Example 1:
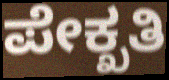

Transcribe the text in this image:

ಪೇಕ್ಖತಿ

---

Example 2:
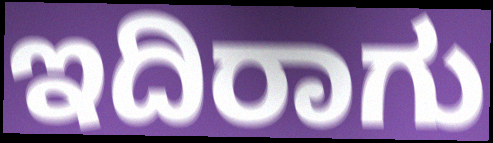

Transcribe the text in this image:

ಇದಿರಾಗು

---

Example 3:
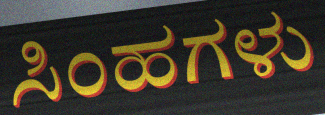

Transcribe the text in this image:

ಸಿಂಹಗಳು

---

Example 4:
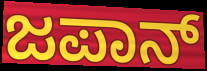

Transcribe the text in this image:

ಜಪಾನ್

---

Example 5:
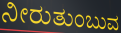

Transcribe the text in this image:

ನೀರುತುಂಬುವ